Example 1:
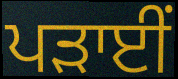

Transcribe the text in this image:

ਪੜਾਈਂ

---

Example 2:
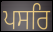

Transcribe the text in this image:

ਪਸਰਿ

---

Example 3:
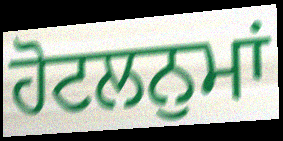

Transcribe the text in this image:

ਹੋਟਲਨੁਮਾਂ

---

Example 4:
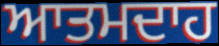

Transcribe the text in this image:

ਆਤਮਦਾਹ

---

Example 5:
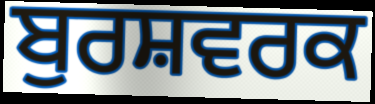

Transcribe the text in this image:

ਬੁਰਸ਼ਵਰਕ